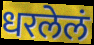
धरलेलं